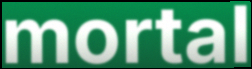
mortal